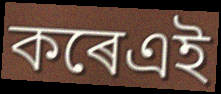
কৰেএই